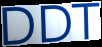
DDT